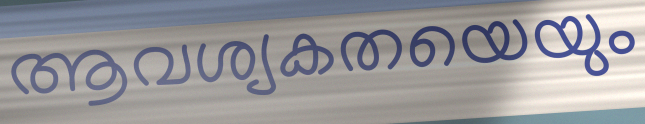
ആവശ്യകതയെയും